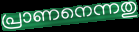
പ്രാണനെന്നതു